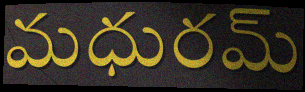
మధురమ్